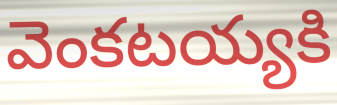
వెంకటయ్యకి